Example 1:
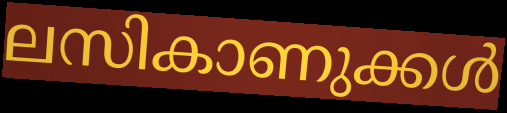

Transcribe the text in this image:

ലസികാണുക്കൾ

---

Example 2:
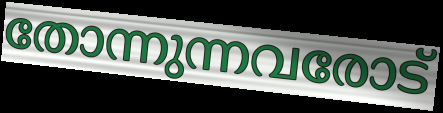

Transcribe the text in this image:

തോന്നുന്നവരോട്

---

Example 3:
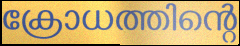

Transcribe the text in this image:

ക്രോധത്തിന്റെ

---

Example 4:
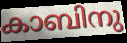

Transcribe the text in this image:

കാബിനു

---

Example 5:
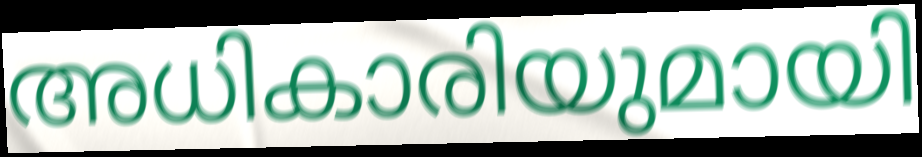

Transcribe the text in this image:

അധികാരിയുമായി